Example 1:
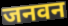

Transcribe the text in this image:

जनवन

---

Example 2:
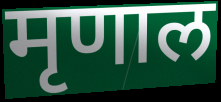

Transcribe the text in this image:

मृणाल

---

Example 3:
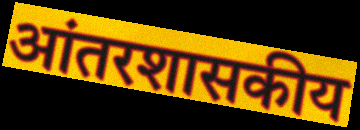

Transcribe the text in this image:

आंतरशासकीय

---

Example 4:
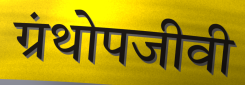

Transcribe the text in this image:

ग्रंथोपजीवी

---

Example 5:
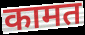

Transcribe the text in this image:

कामत